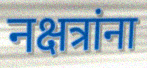
नक्षत्रांना